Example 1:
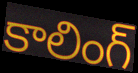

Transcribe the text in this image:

కాలింగ్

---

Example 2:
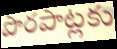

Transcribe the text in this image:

పొరపాట్లకు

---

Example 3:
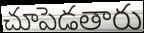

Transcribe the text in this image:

చూపెడతారు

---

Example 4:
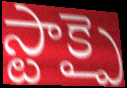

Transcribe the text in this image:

స్టాక్పై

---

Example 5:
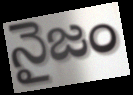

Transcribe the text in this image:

నైజం